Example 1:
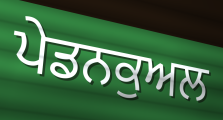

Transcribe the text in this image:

ਪੇਡਨਕੁਅਲ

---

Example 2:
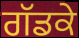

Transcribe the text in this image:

ਗੱਡਕੇ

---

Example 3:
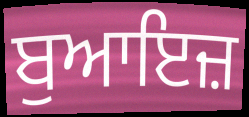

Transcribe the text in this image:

ਬੁਆਇਜ਼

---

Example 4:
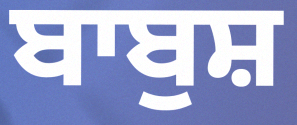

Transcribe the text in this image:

ਬਾਬੁਸ਼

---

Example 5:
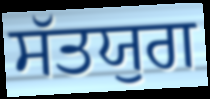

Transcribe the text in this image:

ਸੱਤਯੁਗ